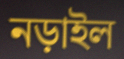
নড়াইল